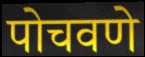
पोचवणे